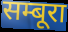
सम्बूरा